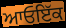
ਆਓਇੱਕ